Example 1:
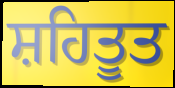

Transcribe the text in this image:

ਸ਼ਹਿਤੂਤ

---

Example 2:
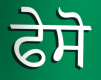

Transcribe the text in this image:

ਫੇਸੋ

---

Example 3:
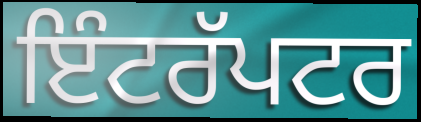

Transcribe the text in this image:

ਇੰਟਰੱਪਟਰ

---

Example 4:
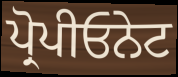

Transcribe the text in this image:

ਪ੍ਰੋਪੀਓਨੇਟ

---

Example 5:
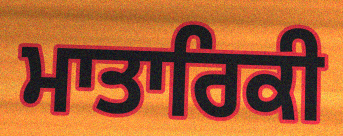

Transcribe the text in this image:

ਮਾਤਾਰਿਕੀ